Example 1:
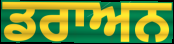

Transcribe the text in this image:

ਡਰਾਅਨ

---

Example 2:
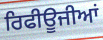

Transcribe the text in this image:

ਰਿਫੀਊਜੀਆਂ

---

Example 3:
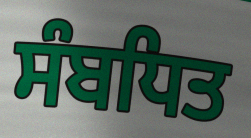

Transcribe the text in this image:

ਸੰਬਧਿਤ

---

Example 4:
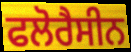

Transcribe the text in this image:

ਫਲੋਰੈਸੀਨ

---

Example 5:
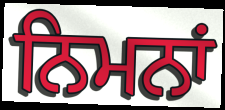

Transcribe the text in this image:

ਨਿਮਨਾਂ